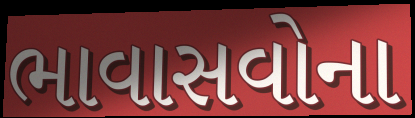
ભાવાસવોના